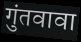
गुंतवावा